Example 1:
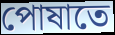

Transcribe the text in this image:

পোষাতে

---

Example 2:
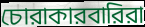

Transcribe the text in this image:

চোরাকারবারিরা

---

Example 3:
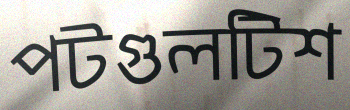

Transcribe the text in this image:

পটগুলটিশ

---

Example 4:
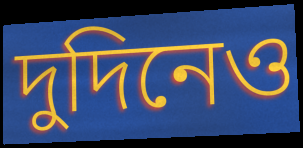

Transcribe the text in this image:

দুদিনেও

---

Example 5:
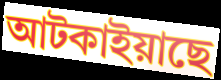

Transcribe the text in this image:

আটকাইয়াছে